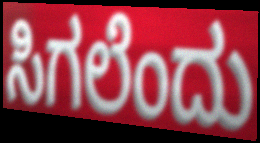
ಸಿಗಲೆಂದು